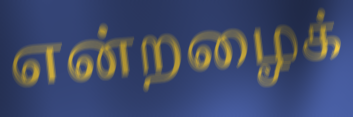
என்றழைக்